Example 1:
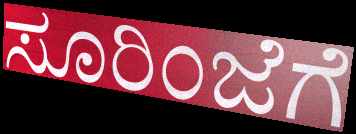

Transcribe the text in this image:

ಸೂರಿಂಜೆಗೆ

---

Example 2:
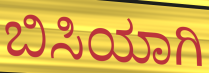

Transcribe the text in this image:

ಬಿಸಿಯಾಗಿ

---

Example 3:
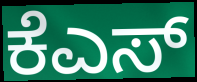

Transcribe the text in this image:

ಕೆಎಸ್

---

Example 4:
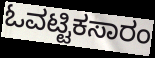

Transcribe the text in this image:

ಓವಟ್ಟಿಕಸಾರಂ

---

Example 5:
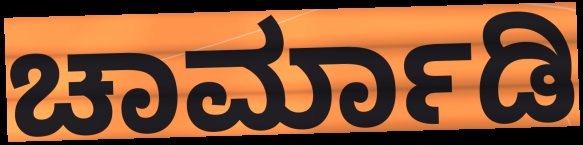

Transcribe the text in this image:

ಚಾರ್ಮಾಡಿ